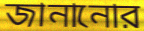
জানানোর